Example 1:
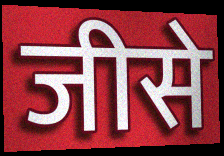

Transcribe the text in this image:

जीसे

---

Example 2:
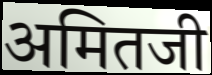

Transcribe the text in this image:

अमितजी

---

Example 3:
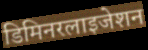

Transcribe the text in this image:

डिमिनरलाइजेशन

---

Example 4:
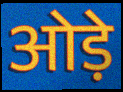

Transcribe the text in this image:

ओड़े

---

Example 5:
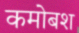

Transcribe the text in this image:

कमोबश